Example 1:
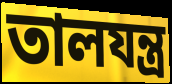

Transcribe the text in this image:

তালযন্ত্র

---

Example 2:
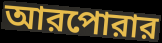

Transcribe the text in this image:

আরপোরার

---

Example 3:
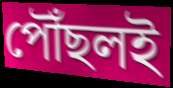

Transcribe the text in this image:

পৌঁছলই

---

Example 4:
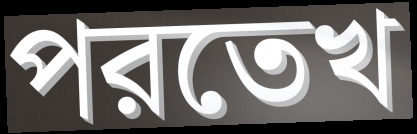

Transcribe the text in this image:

পরতেখ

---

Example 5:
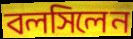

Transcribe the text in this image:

বলসিলেন